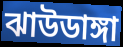
ঝাউডাঙ্গা